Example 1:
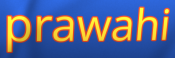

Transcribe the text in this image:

prawahi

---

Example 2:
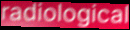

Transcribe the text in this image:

radiological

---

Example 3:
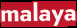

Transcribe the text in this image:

malaya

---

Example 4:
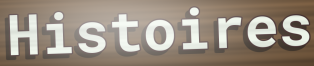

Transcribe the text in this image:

Histoires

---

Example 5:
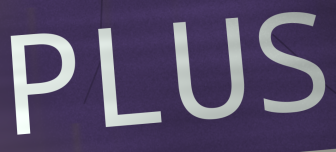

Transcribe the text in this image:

PLUS